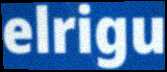
elrigu